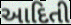
આદિતી